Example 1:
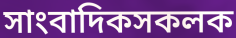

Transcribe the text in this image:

সাংবাদিকসকলক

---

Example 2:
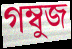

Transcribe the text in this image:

গম্বুজ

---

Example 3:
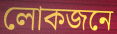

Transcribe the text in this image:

লোকজনে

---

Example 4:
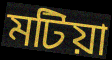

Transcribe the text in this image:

মটিয়া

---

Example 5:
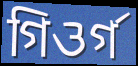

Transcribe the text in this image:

গিওৰ্গ